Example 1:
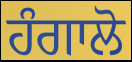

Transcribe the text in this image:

ਹੰਗਾਲੋ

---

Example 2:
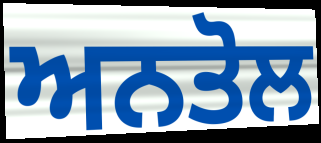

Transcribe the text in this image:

ਅਨਤੋਲ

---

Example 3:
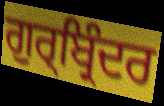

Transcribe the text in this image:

ਗੁਰ੍ਬ੍ਰਿੰਦਰ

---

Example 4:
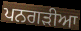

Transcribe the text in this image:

ਪਨਗੜੀਆ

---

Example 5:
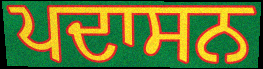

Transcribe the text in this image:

ਪਦਾਸਨ